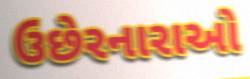
ઉછેરનારાઓ